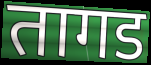
तागड